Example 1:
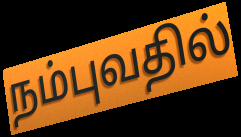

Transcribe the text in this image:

நம்புவதில்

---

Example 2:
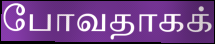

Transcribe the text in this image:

போவதாகக்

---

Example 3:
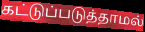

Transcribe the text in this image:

கட்டுப்படுத்தாமல்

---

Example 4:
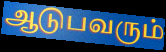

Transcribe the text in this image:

ஆடுபவரும்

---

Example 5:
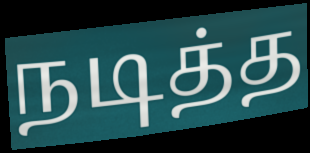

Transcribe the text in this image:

நடித்த